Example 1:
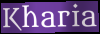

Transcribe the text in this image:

Kharia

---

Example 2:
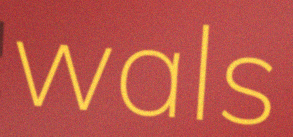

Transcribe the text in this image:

wals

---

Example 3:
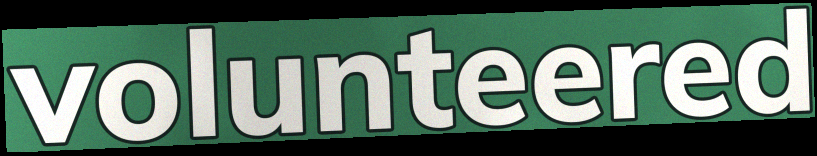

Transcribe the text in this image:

volunteered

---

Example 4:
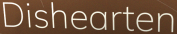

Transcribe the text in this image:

Dishearten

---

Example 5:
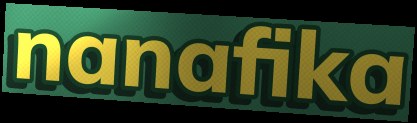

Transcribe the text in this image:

nanafika